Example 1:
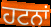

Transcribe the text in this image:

ਹਟਨਾਂ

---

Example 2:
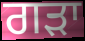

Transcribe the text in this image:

ਗੜਾ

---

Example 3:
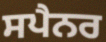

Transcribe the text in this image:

ਸਪੈਨਰ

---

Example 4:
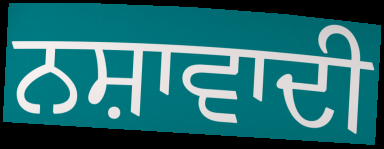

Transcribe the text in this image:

ਨਸ਼ਾਵਾਦੀ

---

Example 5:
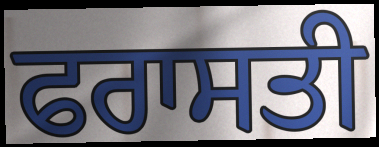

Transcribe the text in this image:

ਫਰਾਸਤੀ